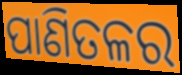
ପାଣିତଳର